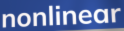
nonlinear